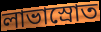
লাভাস্রোত